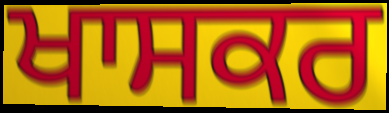
ਖਾਸਕਰ